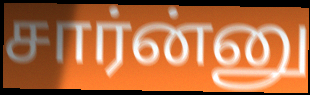
சார்ன்னு